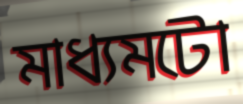
মাধ্যমটো